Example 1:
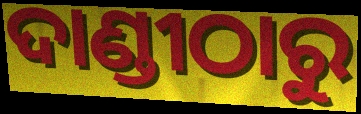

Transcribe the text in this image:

ଦାଣ୍ଡୀଠାରୁ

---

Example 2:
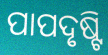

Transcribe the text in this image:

ପାପଦୃଷ୍ଟି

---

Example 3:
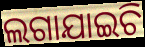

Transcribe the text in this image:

ଲଗାଯାଇଚି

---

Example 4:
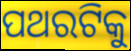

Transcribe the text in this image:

ପଥରଟିକୁ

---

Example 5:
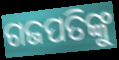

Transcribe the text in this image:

ଗଜପତିଙ୍କୁ